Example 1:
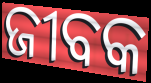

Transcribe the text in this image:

ଜୀବକ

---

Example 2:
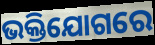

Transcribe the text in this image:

ଭକ୍ତିଯୋଗରେ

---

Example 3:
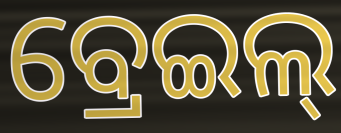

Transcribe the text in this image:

ବ୍ରେଇଲ୍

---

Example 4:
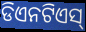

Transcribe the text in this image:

ଡିଏନଟିଏସ୍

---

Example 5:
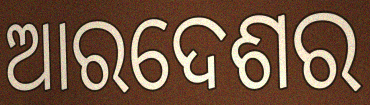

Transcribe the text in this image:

ଆରଦେଶର